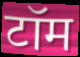
टॉम